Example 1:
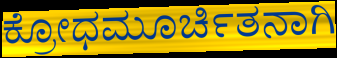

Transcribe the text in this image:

ಕ್ರೋಧಮೂರ್ಚಿತನಾಗಿ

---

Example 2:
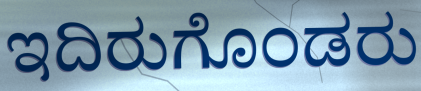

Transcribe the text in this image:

ಇದಿರುಗೊಂಡರು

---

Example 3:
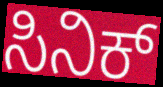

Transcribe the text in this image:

ಸಿನಿಕ್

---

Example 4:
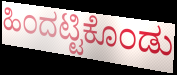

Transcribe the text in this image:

ಹಿಂದಟ್ಟಿಕೊಂಡು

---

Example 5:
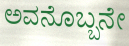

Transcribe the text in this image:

ಅವನೊಬ್ಬನೇ